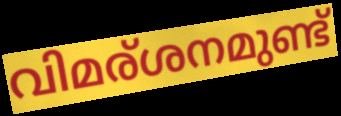
വിമര്ശനമുണ്ട്